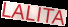
LALITA